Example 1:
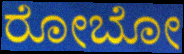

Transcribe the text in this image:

ರೋಬೋ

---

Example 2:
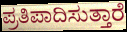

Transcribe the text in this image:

ಪ್ರತಿಪಾದಿಸುತ್ತಾರೆ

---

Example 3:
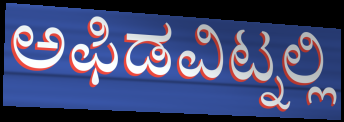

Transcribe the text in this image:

ಅಫಿಡವಿಟ್ನಲ್ಲಿ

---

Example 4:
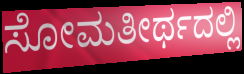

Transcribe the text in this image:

ಸೋಮತೀರ್ಥದಲ್ಲಿ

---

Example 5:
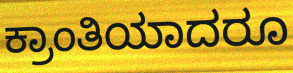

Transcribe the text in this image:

ಕ್ರಾಂತಿಯಾದರೂ